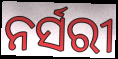
ନର୍ସରୀ